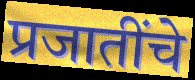
प्रजातींचे